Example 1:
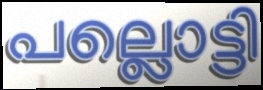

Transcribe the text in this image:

പല്ലൊട്ടി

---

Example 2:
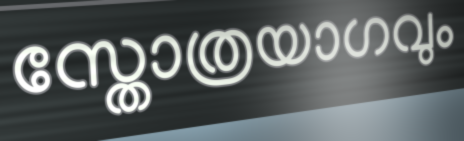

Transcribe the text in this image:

സ്തോത്രയാഗവും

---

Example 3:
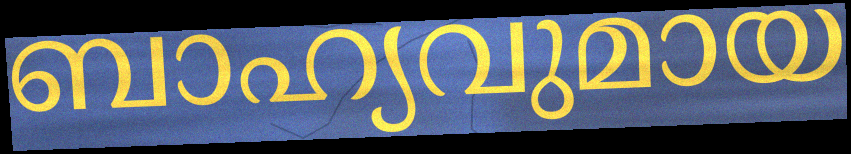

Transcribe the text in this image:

ബാഹ്യവുമായ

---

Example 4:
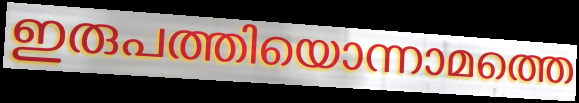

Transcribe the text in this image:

ഇരുപത്തിയൊന്നാമത്തെ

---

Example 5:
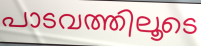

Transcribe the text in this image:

പാടവത്തിലൂടെ